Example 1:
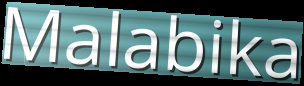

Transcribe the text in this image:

Malabika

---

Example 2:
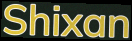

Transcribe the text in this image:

Shixan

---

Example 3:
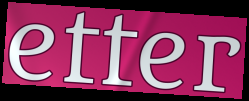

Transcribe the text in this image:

etter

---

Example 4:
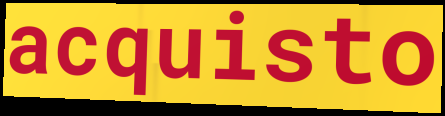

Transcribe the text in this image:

acquisto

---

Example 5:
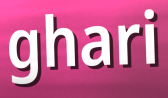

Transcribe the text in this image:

ghari